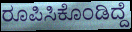
ರೂಪಿಸಿಕೊಂಡಿದ್ದೆ